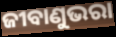
ଜୀବାଣୁଭରା